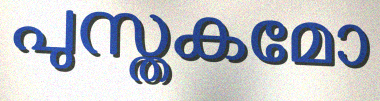
പുസ്തകമോ